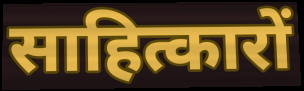
साहित्कारों